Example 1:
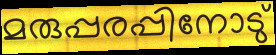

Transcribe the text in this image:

മരുപ്പരപ്പിനോടു്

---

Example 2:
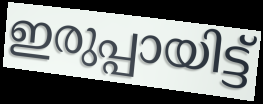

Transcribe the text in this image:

ഇരുപ്പായിട്ട്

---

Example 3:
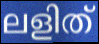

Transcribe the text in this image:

ലളിത്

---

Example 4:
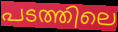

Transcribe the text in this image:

പടത്തിലെ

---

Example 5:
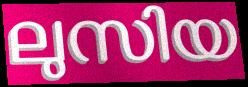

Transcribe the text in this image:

ലുസിയ